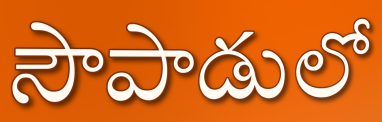
సౌపాడులో